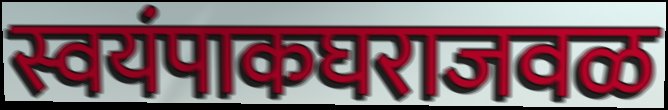
स्वयंपाकघराजवळ